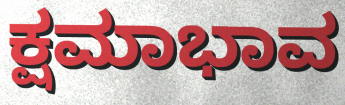
ಕ್ಷಮಾಭಾವ